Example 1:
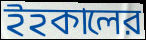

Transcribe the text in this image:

ইহকালের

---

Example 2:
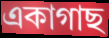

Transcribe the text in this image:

একাগাছ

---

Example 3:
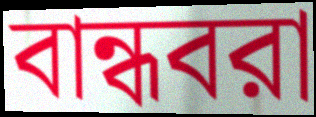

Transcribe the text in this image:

বান্ধবরা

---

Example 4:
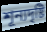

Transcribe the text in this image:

শূন্যদৃষ্টি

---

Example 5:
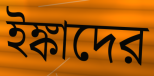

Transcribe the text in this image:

ইঙ্কাদের